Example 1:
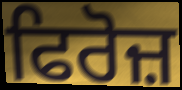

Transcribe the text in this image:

ਫਿਰੋਜ਼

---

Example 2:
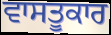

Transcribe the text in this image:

ਵਾਸਤੂਕਾਰ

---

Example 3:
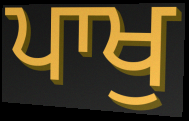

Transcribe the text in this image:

ਪਾਖੁ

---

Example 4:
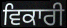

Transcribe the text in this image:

ਵਿਕਾਰੀ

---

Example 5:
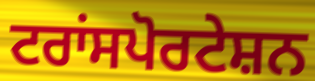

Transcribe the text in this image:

ਟਰਾਂਸਪੋਰਟੇਸ਼ਨ